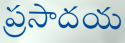
ప్రసాదయ